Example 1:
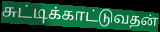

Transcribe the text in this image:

சுட்டிக்காட்டுவதன்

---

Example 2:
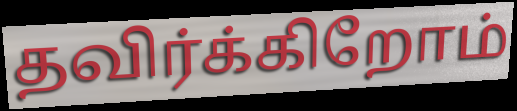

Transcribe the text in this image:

தவிர்க்கிறோம்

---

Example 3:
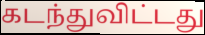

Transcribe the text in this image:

கடந்துவிட்டது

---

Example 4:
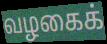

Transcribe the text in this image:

வழகைக்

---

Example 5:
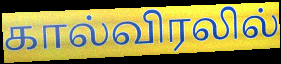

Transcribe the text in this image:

கால்விரலில்